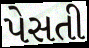
પેસતી